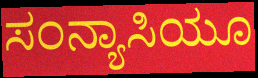
ಸಂನ್ಯಾಸಿಯೂ